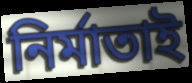
নিৰ্মাতাই